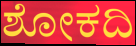
ಶೋಕದಿ